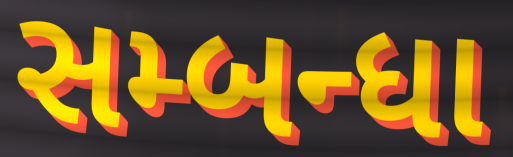
સમ્બન્ધા